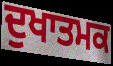
ਦੁਖਾਤਮਕ